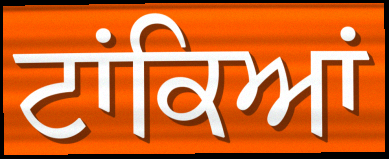
ਟਾਂਕਿਆਂ